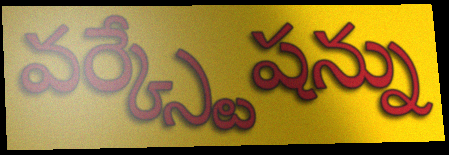
వర్క్స్టేషన్ను